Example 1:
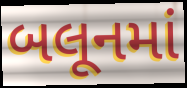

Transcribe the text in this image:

બલૂનમાં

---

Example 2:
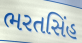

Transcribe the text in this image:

ભરતસિંહ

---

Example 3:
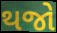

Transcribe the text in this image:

થજો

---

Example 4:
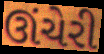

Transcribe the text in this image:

ઊંચેરી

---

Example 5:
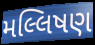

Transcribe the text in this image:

મલ્લિષણ